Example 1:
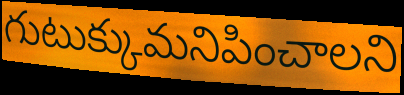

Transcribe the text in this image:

గుటుక్కుమనిపించాలని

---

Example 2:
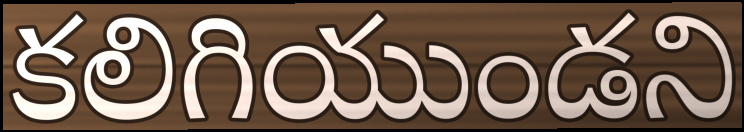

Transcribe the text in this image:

కలిగియుండని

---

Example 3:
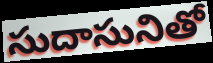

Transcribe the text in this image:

సుదాసునితో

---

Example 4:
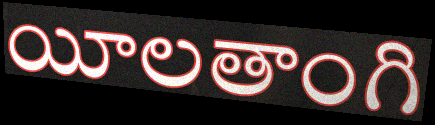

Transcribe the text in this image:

యీలతాంగి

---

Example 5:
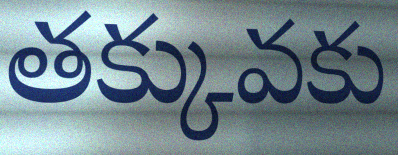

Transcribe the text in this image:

తక్కువకు